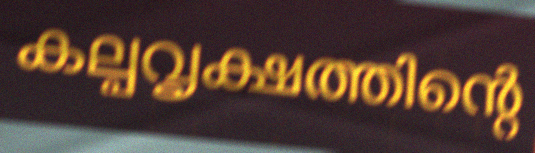
കല്പവൃക്ഷത്തിന്റെ